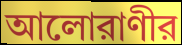
আলোরাণীর